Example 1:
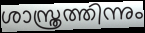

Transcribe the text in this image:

ശാസ്ത്രത്തിന്നും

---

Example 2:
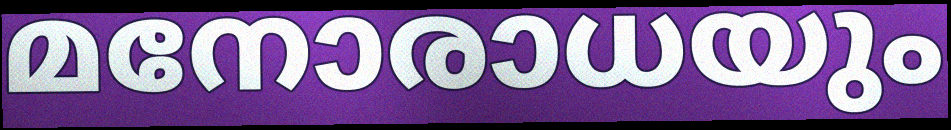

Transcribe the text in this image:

മനോരാധയും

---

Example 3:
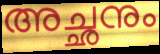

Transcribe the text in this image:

അച്ഛനും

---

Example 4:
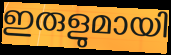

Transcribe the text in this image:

ഇരുളുമായി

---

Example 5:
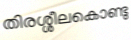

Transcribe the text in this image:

തിരശ്ശീലകൊണ്ടു